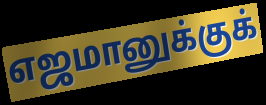
எஜமானுக்குக்